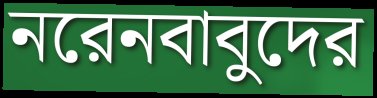
নরেনবাবুদের